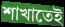
শাখাতেই